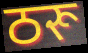
ठरू